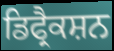
ਡਿਫ੍ਰੈਕਸ਼ਨ